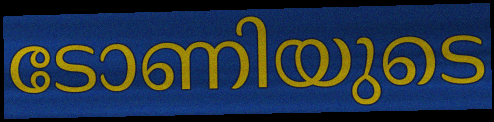
ടോണിയുടെ